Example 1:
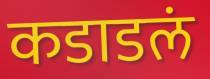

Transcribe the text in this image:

कडाडलं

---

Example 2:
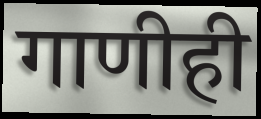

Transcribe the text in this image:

गाणीही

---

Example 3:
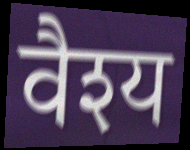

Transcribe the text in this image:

वैश्य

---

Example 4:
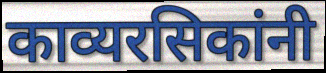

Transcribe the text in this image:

काव्यरसिकांनी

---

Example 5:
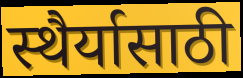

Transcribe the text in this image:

स्थैर्यासाठी